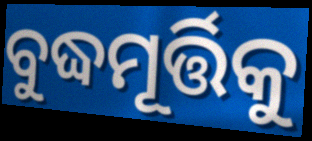
ବୁଦ୍ଧମୂର୍ତ୍ତିକୁ